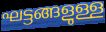
ഘട്ടങ്ങളുള്ള